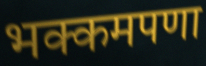
भक्कमपणा